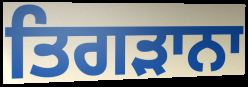
ਤਿਗੜਾਨਾ